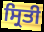
ਸ੍ਰਿਤੀ